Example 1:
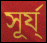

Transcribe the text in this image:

সূৰ্য্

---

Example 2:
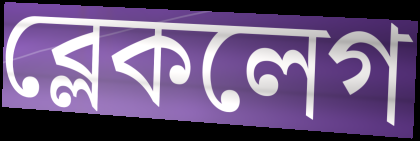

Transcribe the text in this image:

ব্লেকলেগ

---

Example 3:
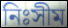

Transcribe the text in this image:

নিঃসীম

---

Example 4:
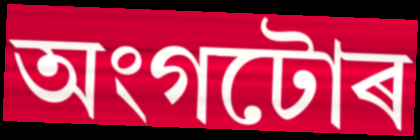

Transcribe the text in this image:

অংগটোৰ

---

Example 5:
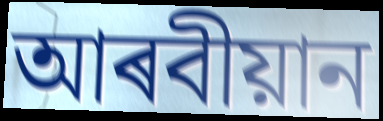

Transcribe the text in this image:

আৰবীয়ান